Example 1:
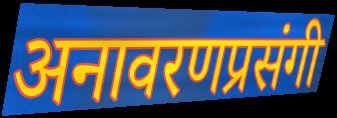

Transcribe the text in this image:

अनावरणप्रसंगी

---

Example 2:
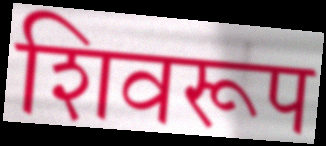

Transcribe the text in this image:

शिवरूप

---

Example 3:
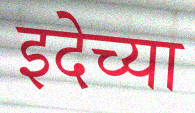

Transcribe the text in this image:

इदेच्या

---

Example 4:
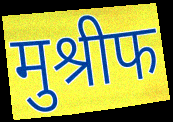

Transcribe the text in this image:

मुश्रीफ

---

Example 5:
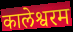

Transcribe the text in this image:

कालेश्वरम